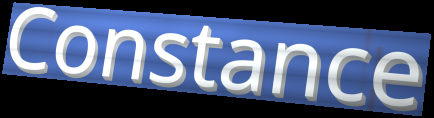
Constance